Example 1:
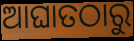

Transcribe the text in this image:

ଆଘାତଠାରୁ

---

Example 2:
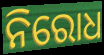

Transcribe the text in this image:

ନିରୋଧ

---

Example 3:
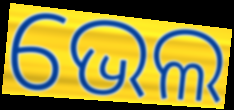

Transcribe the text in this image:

ଭେଲ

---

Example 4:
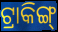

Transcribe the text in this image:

ଟ୍ରାକିଙ୍ଗ୍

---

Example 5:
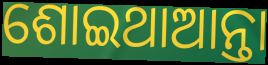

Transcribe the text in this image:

ଶୋଇଥାଆନ୍ତା